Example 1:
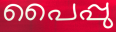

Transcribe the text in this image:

പൈപ്പു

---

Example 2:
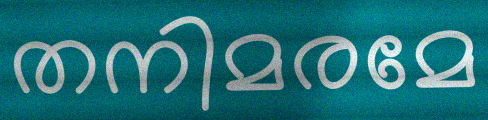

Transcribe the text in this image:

തനിമരമേ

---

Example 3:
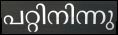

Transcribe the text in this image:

പറ്റിനിന്നു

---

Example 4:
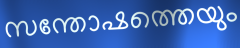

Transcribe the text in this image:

സന്തോഷത്തെയും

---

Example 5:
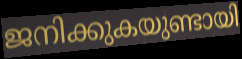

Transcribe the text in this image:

ജനിക്കുകയുണ്ടായി